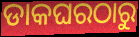
ଡାକଘରଠାରୁ